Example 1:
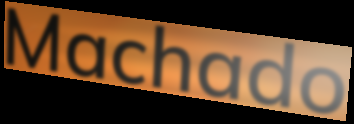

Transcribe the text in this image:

Machado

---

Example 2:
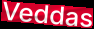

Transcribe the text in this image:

Veddas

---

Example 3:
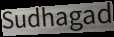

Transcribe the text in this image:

Sudhagad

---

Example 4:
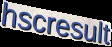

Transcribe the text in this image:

hscresult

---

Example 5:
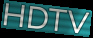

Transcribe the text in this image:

HDTV